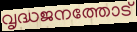
വൃദ്ധജനത്തോട്